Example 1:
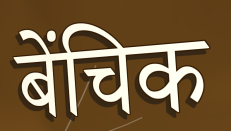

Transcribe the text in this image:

बेंचिक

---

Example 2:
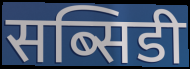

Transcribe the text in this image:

सब्सिडी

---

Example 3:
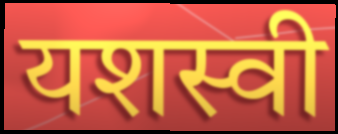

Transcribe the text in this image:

यशस्‍वी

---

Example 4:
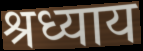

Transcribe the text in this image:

श्रध्याय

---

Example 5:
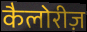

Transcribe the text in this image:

कैलोरीज़